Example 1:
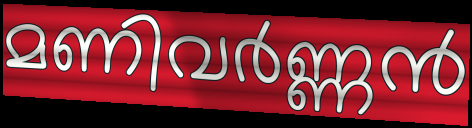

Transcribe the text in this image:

മണിവർണ്ണൻ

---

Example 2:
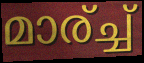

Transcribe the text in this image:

മാര്ച്ച്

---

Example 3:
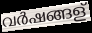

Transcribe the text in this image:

വർഷങ്ങള്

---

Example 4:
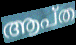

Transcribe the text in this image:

ആപ്ത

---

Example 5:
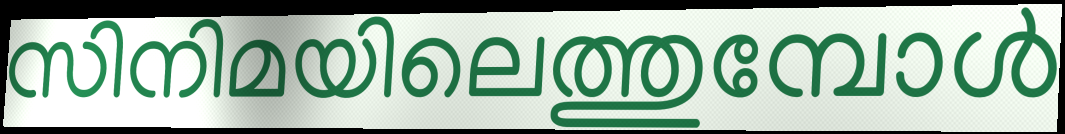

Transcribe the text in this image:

സിനിമയിലെത്തുമ്പോൾ